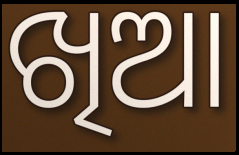
ଖିଆ